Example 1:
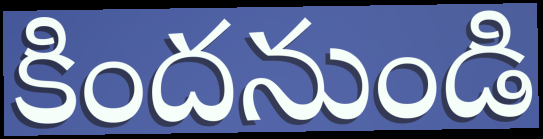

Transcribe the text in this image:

కిందనుండి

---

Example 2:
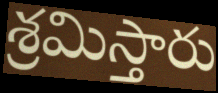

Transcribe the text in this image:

శ్రమిస్తారు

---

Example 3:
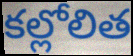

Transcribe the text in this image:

కల్లోలిత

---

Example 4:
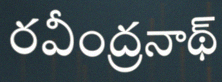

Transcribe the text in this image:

రవీంద్రనాథ్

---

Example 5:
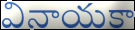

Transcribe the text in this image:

వినాయకా